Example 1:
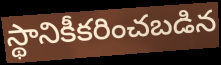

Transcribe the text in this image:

స్థానికీకరించబడిన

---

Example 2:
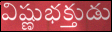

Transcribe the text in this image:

విష్ణుభక్తుడు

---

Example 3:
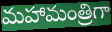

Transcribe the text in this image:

మహామంత్రిగా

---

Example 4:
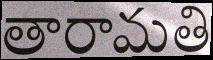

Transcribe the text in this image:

తారామతి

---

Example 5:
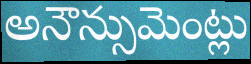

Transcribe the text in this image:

అనౌన్సుమెంట్లు